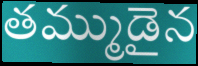
తమ్ముడైన